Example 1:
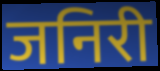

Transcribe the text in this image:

जनिरी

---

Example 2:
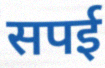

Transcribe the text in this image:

सपई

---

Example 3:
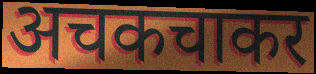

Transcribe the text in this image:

अचकचाकर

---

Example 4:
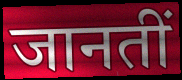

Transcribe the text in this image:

जानतीं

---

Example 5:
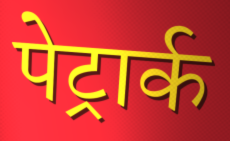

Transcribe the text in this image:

पेट्रार्क